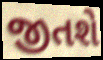
જીતશે